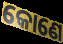
କୋଣେ